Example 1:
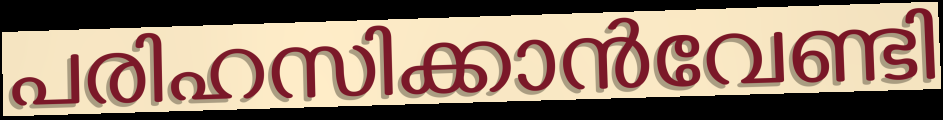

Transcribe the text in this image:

പരിഹസിക്കാൻവേണ്ടി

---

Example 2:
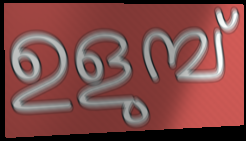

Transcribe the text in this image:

ഉളുമ്പ്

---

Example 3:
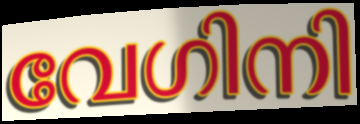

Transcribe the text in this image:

വേഗിനി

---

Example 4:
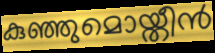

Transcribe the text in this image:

കുഞ്ഞുമൊയ്തീൻ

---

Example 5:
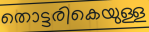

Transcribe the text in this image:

തൊട്ടരികെയുള്ള